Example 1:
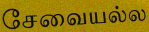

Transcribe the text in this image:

சேவையல்ல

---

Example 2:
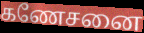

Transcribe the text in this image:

கணேசனை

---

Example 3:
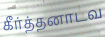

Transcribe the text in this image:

கீர்த்தனாடவ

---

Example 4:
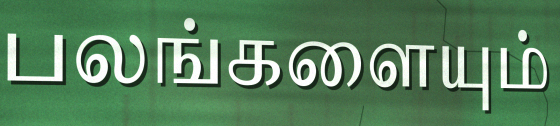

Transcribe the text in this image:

பலங்களையும்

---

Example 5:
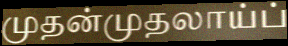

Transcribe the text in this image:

முதன்முதலாய்ப்